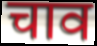
चाव